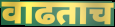
वाढताच